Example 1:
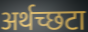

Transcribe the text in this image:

अर्थच्छटा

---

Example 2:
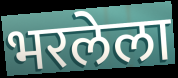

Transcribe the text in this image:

भरलेला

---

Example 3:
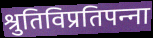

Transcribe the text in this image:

श्रुतिविप्रतिपन्ना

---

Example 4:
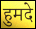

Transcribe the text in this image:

हुमदे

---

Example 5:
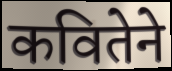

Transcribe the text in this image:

कवितेने